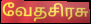
வேதசிரசு